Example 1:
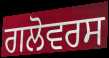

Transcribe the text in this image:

ਗਲੋਵਰਸ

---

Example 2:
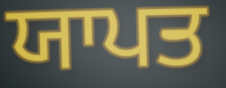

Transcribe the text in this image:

ਯਾਪਤ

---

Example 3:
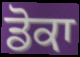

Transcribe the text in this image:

ਡੋਕਾ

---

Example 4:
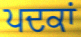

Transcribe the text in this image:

ਪਦਕਾਂ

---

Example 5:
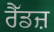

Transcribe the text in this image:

ਰੈੱਡਜ਼